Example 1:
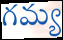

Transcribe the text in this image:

గమ్య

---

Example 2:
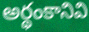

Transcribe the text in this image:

అర్థంకానివి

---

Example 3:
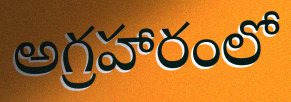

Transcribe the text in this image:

అగ్రహారంలో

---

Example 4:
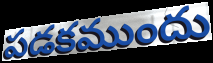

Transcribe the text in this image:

పడకముందు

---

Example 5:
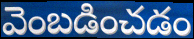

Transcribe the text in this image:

వెంబడించడం